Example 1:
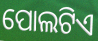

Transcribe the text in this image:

ପୋଲଟିଏ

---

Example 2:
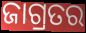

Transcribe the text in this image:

ଜାଗ୍ରତର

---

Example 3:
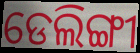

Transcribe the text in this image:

ଡେଲିଙ୍ଗୀ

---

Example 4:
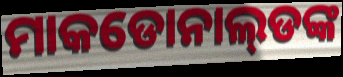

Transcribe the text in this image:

ମାକଡୋନାଲ୍‍ଡଙ୍କ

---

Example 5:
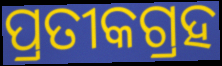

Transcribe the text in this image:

ପ୍ରତୀକଗ୍ରହ